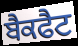
ਬੈਕਫੈਟ